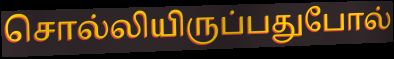
சொல்லியிருப்பதுபோல்